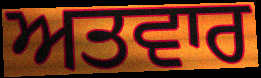
ਅਤਵਾਰ